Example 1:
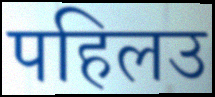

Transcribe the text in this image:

पहिलउ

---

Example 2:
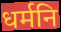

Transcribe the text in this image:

धर्मनि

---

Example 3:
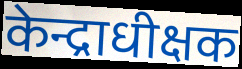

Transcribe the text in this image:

केन्द्राधीक्षक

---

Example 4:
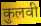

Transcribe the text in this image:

कुलवी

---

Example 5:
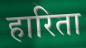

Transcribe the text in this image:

हारिता